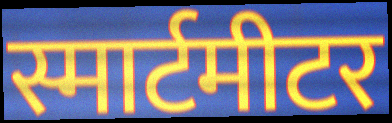
स्मार्टमीटर